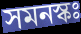
সমনস্কঃ